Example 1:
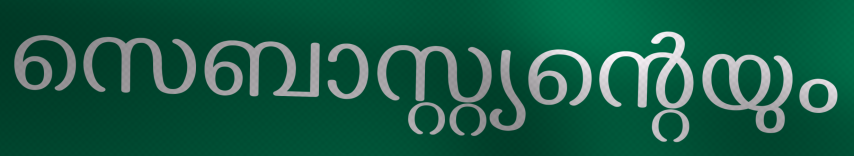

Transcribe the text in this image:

സെബാസ്റ്റ്യന്റെയും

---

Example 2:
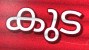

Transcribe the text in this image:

കുട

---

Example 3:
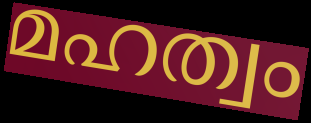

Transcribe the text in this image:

മഹത്വം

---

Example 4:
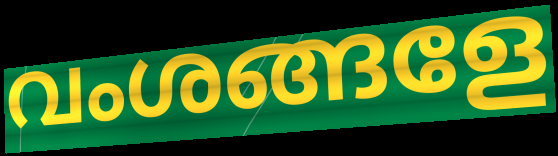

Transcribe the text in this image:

വംശങ്ങളേ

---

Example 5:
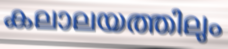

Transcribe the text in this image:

കലാലയത്തിലും